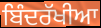
ਬਿੰਦਰੱਖੀਆ